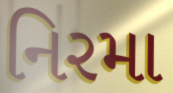
નિરમા